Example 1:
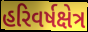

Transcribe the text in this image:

હરિવર્ષક્ષેત્ર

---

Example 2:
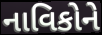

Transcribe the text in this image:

નાવિકોને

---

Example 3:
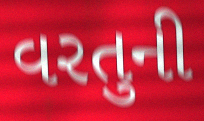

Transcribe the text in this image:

વરતુની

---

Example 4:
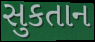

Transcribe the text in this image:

સુકતાન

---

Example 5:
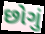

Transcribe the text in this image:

છોગું